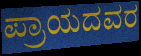
ಪ್ರಾಯದವರ